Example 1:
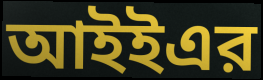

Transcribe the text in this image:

আইইএর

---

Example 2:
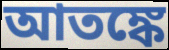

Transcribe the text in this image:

আতঙ্কে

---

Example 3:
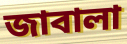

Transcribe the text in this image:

জাবালা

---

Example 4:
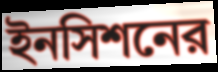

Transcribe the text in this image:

ইনসিশনের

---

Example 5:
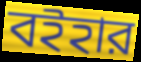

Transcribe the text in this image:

বইহার